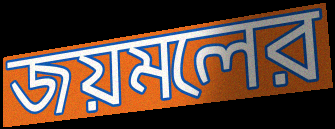
জয়মলের